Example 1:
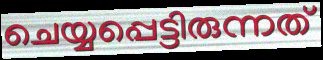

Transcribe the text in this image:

ചെയ്യപ്പെട്ടിരുന്നത്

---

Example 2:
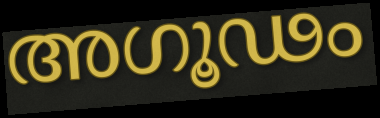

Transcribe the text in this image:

അഗൂഢം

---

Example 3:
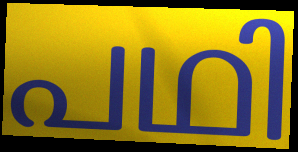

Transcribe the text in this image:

പഥി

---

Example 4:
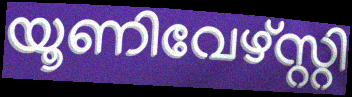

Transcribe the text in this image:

യൂണിവേഴ്സ്റ്റി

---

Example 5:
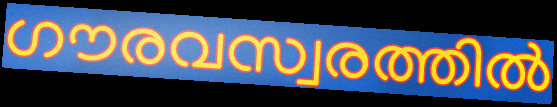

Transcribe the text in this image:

ഗൗരവസ്വരത്തിൽ